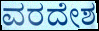
ವರದೇಶ